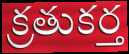
క్రతుకర్త